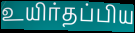
உயிர்தப்பிய